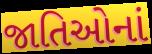
જાતિઓનાં